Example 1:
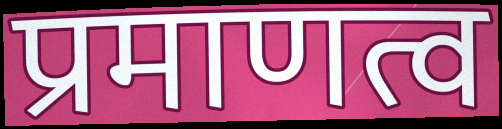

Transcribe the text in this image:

प्रमाणत्व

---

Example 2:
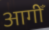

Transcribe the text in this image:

आगीँ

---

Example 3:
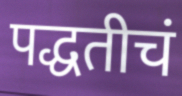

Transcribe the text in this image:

पद्धतीचं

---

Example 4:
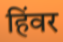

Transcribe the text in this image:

हिंवर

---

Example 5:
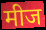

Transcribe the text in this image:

मीज